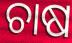
ଚାଷ